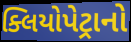
ક્લિયોપેટ્રાનો